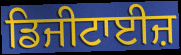
ਡਿਜੀਟਾਈਜ਼